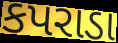
કપરાડા